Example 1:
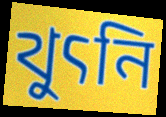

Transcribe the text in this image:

থুৎনি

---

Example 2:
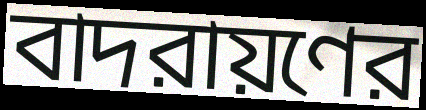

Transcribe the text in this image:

বাদরায়ণের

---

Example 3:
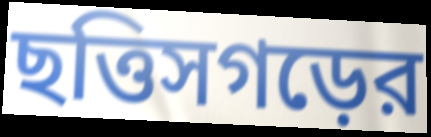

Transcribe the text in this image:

ছত্তিসগড়ের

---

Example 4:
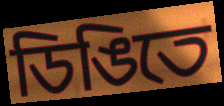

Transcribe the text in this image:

ডিঙিতে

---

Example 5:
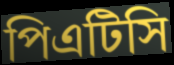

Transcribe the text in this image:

পিএটিসি